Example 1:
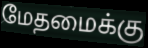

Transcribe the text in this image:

மேதமைக்கு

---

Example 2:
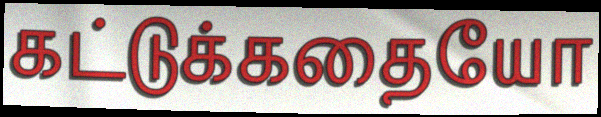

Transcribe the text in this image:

கட்டுக்கதையோ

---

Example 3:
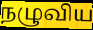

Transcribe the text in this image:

நழுவிய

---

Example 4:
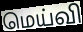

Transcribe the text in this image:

மெய்வி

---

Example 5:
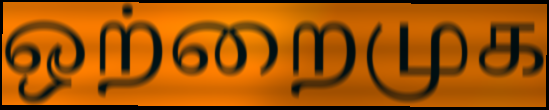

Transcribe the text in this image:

ஒற்றைமுக